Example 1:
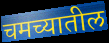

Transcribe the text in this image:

चमच्यातील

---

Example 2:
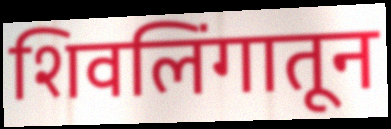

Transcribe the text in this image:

शिवलिंगातून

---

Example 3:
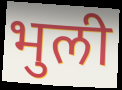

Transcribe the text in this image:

भुली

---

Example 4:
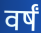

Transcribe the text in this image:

वर्षं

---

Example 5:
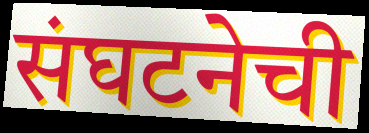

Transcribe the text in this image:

संघटनेची